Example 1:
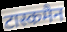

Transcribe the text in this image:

टास्कमैन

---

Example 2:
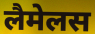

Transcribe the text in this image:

लैमेलस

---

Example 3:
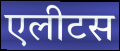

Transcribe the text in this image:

एलीटस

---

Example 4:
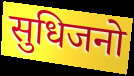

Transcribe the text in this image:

सुधिजनो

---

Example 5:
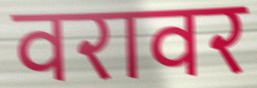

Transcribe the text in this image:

वरावर